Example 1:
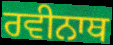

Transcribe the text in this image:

ਰਵੀਨਾਥ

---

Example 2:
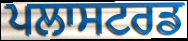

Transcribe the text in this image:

ਪਲਾਸਟਰਡ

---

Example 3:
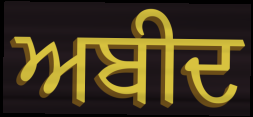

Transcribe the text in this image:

ਅਬੀਦ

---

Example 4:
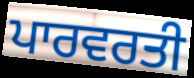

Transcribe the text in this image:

ਪਾਰਵਰਤੀ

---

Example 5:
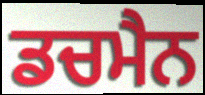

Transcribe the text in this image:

ਡਚਮੈਨ